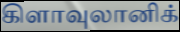
கிளாவுலானிக்